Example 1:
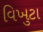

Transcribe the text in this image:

વિખુટા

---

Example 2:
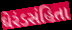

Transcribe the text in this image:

ઘેરંડસંહિતા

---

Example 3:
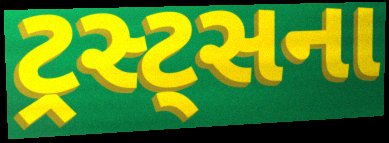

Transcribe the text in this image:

ટ્રસ્ટ્સના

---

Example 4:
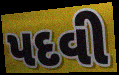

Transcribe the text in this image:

પદવી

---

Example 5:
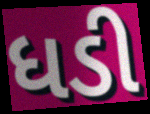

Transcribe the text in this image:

ધડી